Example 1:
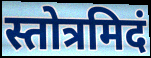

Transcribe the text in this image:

स्तोत्रमिदं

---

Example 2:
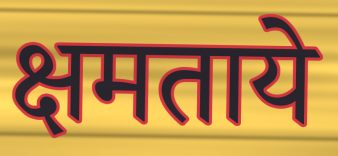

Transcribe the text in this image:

क्षमताये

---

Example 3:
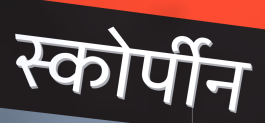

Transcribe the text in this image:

स्कोर्पीन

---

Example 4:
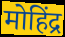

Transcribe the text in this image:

मोहिंद्र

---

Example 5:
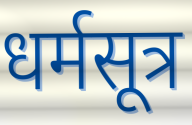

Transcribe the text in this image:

धर्मसूत्र